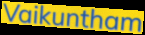
Vaikuntham